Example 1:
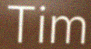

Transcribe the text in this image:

Tim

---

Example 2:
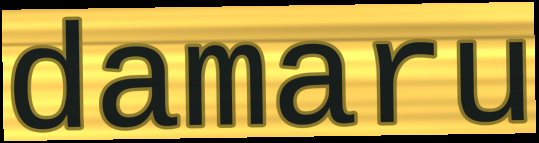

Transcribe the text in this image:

damaru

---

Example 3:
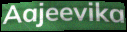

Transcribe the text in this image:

Aajeevika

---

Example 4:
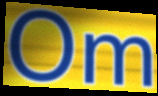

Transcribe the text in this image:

Om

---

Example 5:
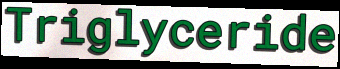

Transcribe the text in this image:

Triglyceride